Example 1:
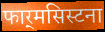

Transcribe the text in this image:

फार्मसिस्टना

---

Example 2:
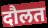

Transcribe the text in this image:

दौलत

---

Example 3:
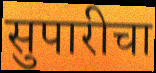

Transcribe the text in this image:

सुपारीचा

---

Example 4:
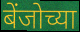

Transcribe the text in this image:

बेंजोच्या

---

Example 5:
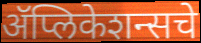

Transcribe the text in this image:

ॲप्लिकेशन्सचे